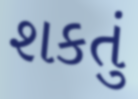
શકતું